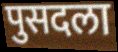
पुसदला